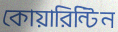
কোয়ারিন্টিন